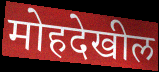
मोहदेखील